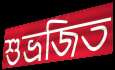
শুভ্রজিত